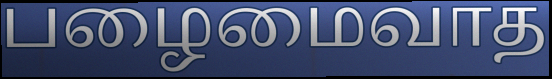
பழைமைவாத